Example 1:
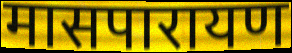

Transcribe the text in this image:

मासपारायण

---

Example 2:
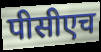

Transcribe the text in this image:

पीसीएच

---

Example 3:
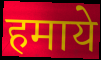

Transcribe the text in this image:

हमाये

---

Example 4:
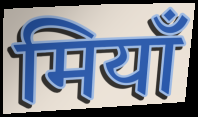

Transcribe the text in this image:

मियाँ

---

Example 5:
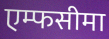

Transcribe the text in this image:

एम्फसीमा